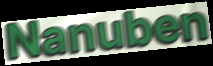
Nanuben